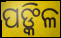
ପଙ୍କିଳ